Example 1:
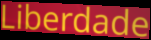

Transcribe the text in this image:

Liberdade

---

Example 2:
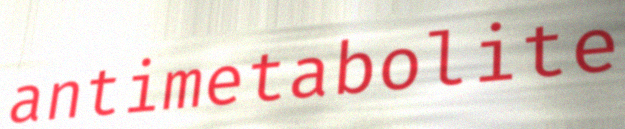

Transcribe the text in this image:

antimetabolite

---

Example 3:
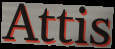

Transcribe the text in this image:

Attis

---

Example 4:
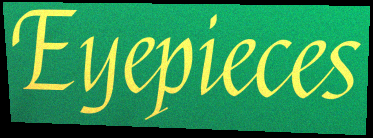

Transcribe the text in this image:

Eyepieces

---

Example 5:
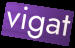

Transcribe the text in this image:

vigat